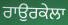
ਰਾਉਰਕੇਲਾ